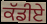
ਕੱਡੀਏ